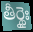
తీర్థైః